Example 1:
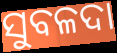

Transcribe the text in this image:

ସୁବଳଦା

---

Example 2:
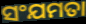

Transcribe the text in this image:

ସଂଯମତା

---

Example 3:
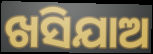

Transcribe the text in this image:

ଖସିଯାଅ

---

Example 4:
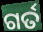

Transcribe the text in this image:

ଗର୍ତ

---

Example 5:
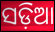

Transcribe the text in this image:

ସଡ଼ିଆ